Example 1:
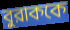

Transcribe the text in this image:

বুরাককে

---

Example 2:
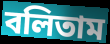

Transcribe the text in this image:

বলিতাম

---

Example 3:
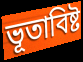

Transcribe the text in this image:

ভূতাবিষ্ট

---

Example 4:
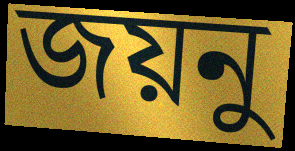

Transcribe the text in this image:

জয়নু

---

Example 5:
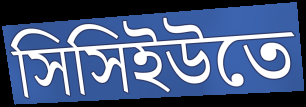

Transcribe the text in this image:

সিসিইউতে